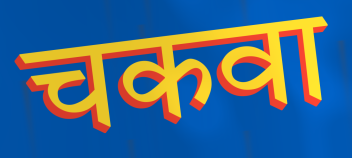
चकवा